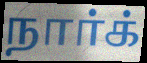
நார்க்